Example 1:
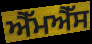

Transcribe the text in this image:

ਐੱਮਐੱਸ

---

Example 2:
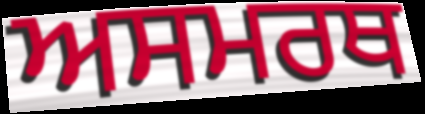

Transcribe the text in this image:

ਅਸਮਰਥ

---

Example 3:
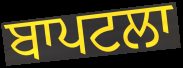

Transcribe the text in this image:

ਬਾਪਟਲਾ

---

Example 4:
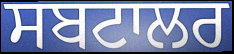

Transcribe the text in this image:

ਸਬਟਾਲਰ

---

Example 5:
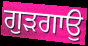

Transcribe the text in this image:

ਗੁੜਗਾਉ